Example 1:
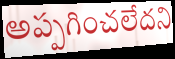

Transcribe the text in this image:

అప్పగించలేదని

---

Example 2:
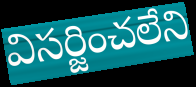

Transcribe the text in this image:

విసర్జించలేని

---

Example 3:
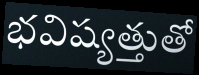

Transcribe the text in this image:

భవిష్యత్తుతో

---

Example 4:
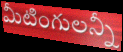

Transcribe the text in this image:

మీటింగులన్నీ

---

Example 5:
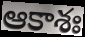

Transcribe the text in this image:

ఆకాశః